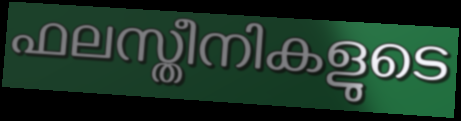
ഫലസ്തീനികളുടെ